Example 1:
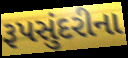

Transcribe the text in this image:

રૂપસુંદરીના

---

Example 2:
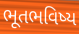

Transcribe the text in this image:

ભૂતભવિષ્ય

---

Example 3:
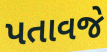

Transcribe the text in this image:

પતાવજે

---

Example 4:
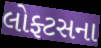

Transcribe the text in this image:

લોફ્ટસના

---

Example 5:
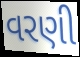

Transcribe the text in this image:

વરણી